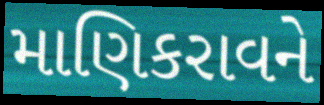
માણિકરાવને